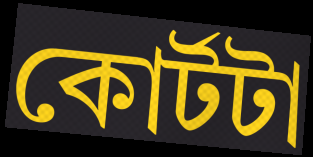
কোর্টটা